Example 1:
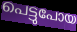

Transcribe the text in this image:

പെട്ടുപോയ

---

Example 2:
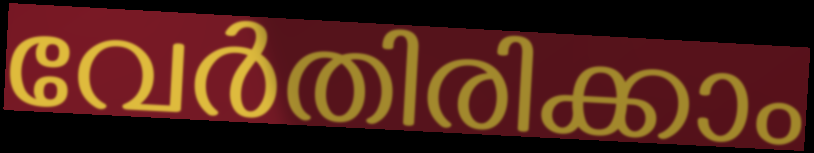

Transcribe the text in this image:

വേർതിരിക്കാം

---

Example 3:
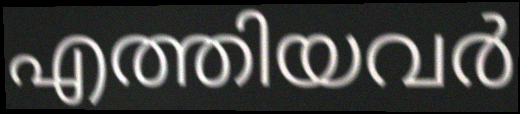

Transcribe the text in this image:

എത്തിയവർ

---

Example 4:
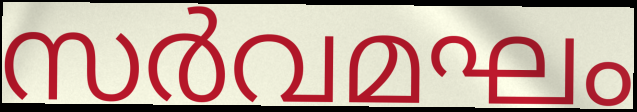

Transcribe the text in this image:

സർവമഘം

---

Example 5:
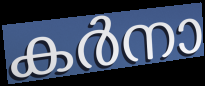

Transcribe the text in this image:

കർനാ